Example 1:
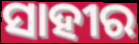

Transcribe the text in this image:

ସାହୀର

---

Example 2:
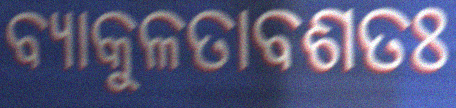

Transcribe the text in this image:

ବ୍ୟାକୁଳତାବଶତଃ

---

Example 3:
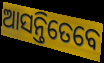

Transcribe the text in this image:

ଆସନ୍ତିତେବେ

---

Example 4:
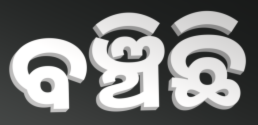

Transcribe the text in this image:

ବଞ୍ଚିଛି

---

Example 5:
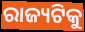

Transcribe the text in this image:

ରାଜ୍ୟଟିକୁ